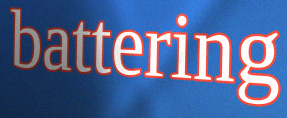
battering